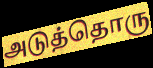
அடுத்தொரு